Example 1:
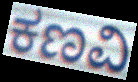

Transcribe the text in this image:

ಕಣವಿ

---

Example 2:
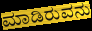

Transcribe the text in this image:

ಮಾಡಿರುವನು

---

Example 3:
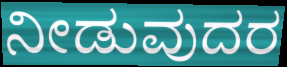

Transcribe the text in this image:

ನೀಡುವುದರ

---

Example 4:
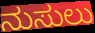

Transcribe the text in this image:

ನುಸುಲು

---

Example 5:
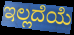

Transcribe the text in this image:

ಇಲ್ಲದೆಯೆ